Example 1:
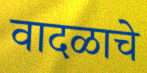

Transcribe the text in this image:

वादळाचे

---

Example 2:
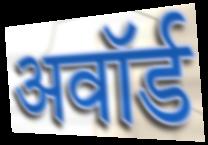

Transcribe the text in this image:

अवॉर्ड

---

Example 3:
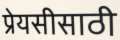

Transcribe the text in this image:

प्रेयसीसाठी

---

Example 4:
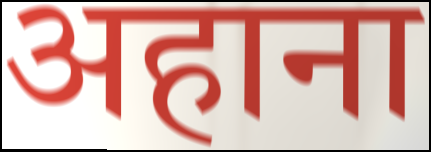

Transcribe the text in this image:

अहाना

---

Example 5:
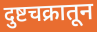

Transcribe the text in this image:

दुष्टचक्रातून